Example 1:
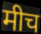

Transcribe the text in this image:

मीच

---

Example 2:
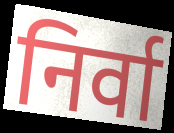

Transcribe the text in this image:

निर्वा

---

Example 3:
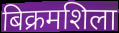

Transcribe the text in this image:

बिक्रमशिला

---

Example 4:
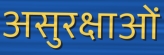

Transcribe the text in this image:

असुरक्षाओं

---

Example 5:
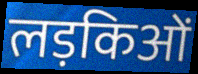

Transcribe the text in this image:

लड़किओं